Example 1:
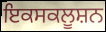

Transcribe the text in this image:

ਇਕਸਕਲੂਸ਼ਨ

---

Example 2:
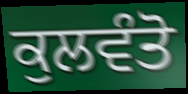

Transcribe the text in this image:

ਕੁਲਵੰਤੋ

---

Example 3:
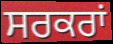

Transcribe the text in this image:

ਸਰਕਰਾਂ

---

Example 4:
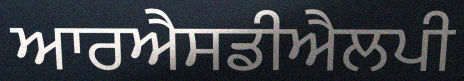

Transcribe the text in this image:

ਆਰਐਸਡੀਐਲਪੀ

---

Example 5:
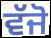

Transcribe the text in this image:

ਵੱਜੋ